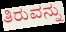
ತಿರುವನ್ನು